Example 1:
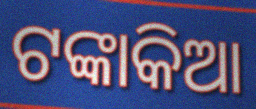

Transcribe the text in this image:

ଟଙ୍କାକିଆ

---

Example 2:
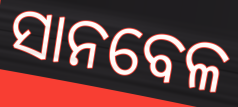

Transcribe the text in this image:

ସାନବେଳ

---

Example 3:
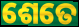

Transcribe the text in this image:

ଶେତେ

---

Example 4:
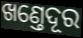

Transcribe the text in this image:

ଖଣ୍ତେଦୂର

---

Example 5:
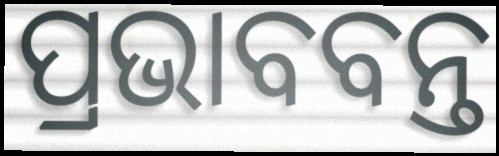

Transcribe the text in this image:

ପ୍ରଭାବବନ୍ତ